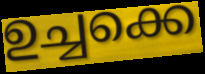
ഉച്ചക്കെ